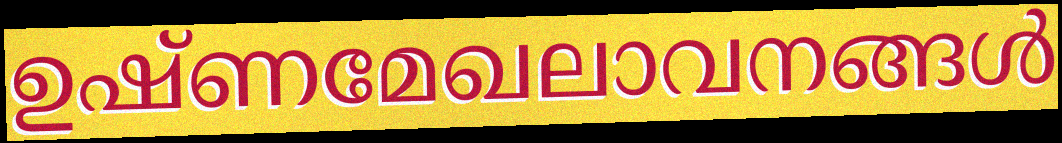
ഉഷ്ണമേഖലാവനങ്ങൾ